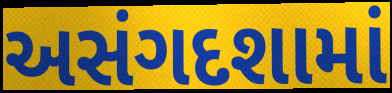
અસંગદશામાં